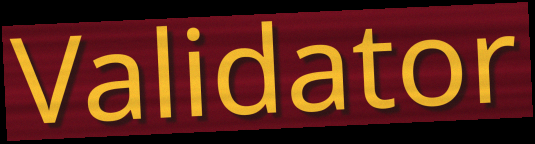
Validator